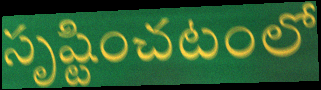
సృష్టించటంలో